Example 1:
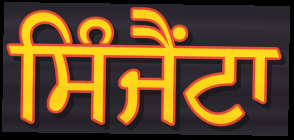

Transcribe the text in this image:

ਸਿੰਜੈਂਟਾ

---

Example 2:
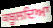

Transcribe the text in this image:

ਕਬੂਲਦਿਆ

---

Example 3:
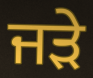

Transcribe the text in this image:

ਜੜੇ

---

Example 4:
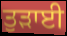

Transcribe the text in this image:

ਤੁੜਾਈ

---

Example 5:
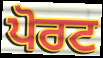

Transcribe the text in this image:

ਪੋਰਟ